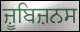
ਜ਼ੂਬਿਜ਼ਨਸ